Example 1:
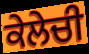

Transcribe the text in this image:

ਕੇਲੇਚੀ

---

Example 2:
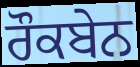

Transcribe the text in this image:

ਰੌਕਬੇਨ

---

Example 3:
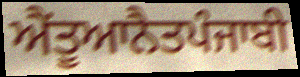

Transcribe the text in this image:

ਐਂਤੂਆਨੈਤਪੰਜਾਬੀ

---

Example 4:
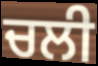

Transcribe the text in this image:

ਚਲੀ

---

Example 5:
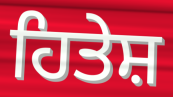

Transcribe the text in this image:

ਹਿਤੇਸ਼